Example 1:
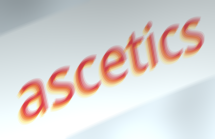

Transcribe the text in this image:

ascetics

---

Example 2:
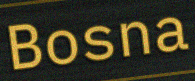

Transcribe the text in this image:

Bosna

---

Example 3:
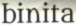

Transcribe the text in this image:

binita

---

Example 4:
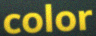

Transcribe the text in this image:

color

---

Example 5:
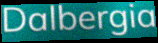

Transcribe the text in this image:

Dalbergia